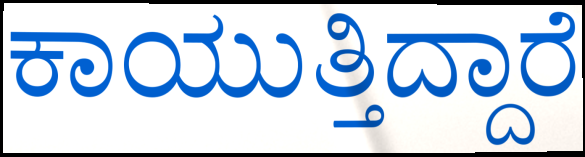
ಕಾಯುತ್ತಿದ್ದಾರೆ